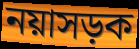
নয়াসড়ক